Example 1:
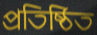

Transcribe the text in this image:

প্রতিষ্ঠিত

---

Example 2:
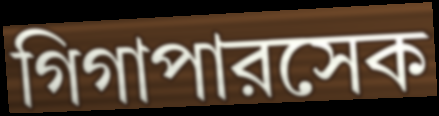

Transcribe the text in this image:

গিগাপারসেক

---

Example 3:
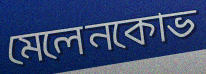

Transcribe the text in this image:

মেলেনকোভ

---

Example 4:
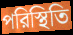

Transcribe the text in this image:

পরিস্থিতি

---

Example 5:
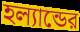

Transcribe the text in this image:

হল্যান্ডের